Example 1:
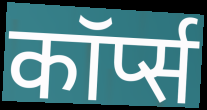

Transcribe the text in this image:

कॉर्प्स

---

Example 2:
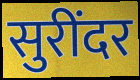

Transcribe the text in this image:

सुरींदर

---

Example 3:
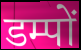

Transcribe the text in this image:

डम्पों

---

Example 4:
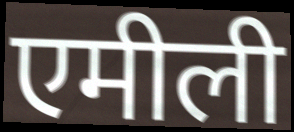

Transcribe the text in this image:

एमीली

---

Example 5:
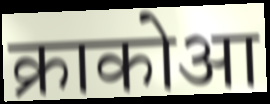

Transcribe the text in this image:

क्राकोआ